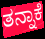
ತನ್ನಾಕೆ